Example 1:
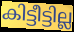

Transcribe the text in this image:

കിട്ടീട്ടില്ല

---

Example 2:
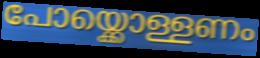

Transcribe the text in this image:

പോയ്ക്കൊള്ളണം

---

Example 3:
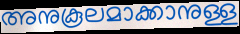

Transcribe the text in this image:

അനുകൂലമാക്കാനുള്ള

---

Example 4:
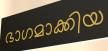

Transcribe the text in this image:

ഭാഗമാക്കിയ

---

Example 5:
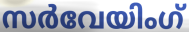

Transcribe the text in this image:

സർവേയിംഗ്